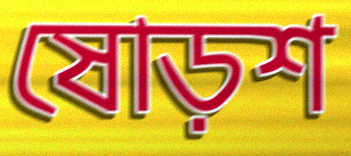
ষোড়শ